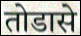
तोडासे